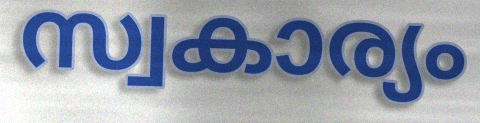
സ്വകാര്യം